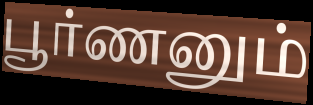
பூர்ணனும்